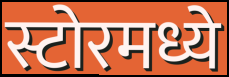
स्टोरमध्ये